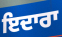
ਇਦਾਰਾ